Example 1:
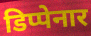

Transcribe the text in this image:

डिप्पेनार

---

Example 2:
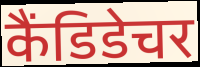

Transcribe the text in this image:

कैंडिडेचर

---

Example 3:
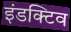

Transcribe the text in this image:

इंडक्टिव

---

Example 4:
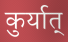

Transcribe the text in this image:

कुर्यात्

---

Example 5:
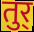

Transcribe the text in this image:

तुर्